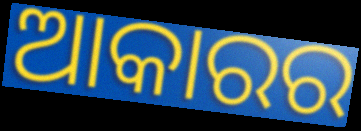
ଆକାରର